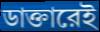
ডাক্তারেই